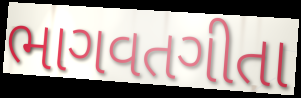
ભાગવતગીતા